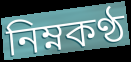
নিম্নকণ্ঠ